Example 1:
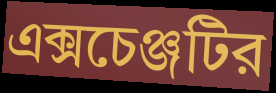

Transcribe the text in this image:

এক্সচেঞ্জটির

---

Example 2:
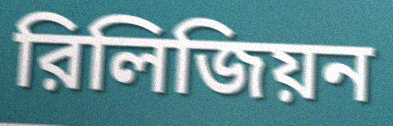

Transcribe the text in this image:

রিলিজিয়ন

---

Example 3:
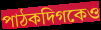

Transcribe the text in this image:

পাঠকদিগকেও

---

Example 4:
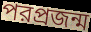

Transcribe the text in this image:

পরপ্রজন্ম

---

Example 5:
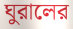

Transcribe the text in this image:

ঘুরালের